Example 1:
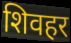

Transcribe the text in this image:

शिवहर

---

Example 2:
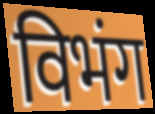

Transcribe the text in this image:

विभंग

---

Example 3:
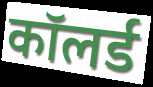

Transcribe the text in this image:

कॉलर्ड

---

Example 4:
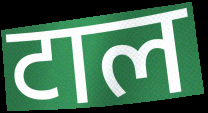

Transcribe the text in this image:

टाल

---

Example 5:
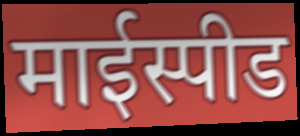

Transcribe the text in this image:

माईस्पीड